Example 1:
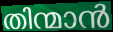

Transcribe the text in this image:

തിന്മാൻ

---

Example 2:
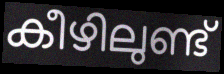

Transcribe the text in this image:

കീഴിലുണ്ട്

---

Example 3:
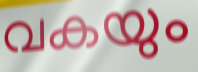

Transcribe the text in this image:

വകയും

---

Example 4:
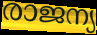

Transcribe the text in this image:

രാജന്യ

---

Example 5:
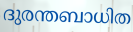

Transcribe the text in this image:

ദുരന്തബാധിത